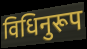
विधिनुरूप